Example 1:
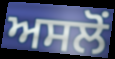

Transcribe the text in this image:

ਅਸਲੋਂ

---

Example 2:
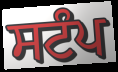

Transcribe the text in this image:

ਸਟੰਪ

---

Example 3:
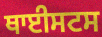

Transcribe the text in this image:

ਥਾਈਸਟਸ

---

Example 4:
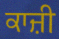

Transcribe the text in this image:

ਕਾਜ਼ੀ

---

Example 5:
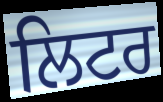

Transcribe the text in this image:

ਲਿਟਰ